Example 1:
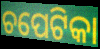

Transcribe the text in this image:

ଚପେଟିକା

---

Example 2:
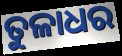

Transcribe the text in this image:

ତୁଳାଧର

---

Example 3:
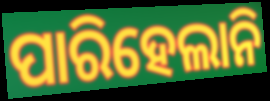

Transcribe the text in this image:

ପାରିହେଲାନି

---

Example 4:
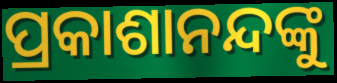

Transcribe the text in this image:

ପ୍ରକାଶାନନ୍ଦଙ୍କୁ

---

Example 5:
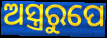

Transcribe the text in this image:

ଅସ୍ତ୍ରରୁପେ